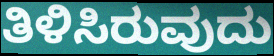
ತಿಳಿಸಿರುವುದು